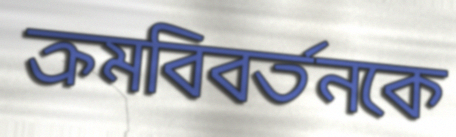
ক্রমবিবর্তনকে